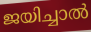
ജയിച്ചാൽ